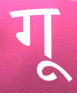
गू